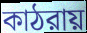
কাঠরায়